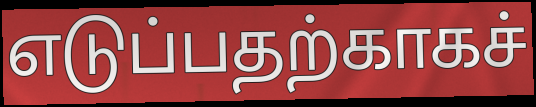
எடுப்பதற்காகச்